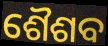
ଶୈଶବ